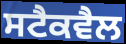
ਸਟੈਕਵੈਲ